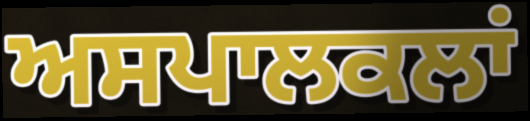
ਅਸਪਾਲਕਲਾਂ